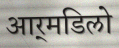
आर्मडिलो